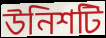
উনিশটি